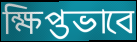
ক্ষিপ্তভাবে